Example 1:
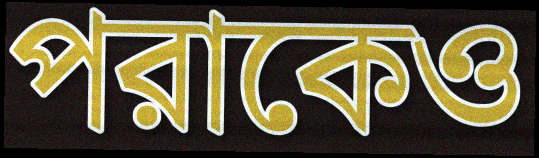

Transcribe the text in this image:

পরাকেও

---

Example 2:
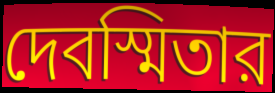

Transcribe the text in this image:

দেবস্মিতার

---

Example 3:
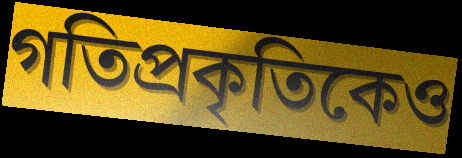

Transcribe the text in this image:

গতিপ্রকৃতিকেও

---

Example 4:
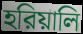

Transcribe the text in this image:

হরিয়ালি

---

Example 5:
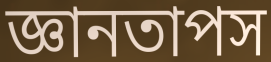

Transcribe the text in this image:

জ্ঞানতাপস